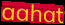
aahat